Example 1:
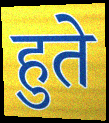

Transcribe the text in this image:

हुते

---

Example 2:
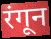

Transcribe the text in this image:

रंगून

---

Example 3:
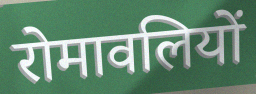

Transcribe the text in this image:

रोमावलियों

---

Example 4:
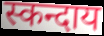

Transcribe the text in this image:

स्कन्दाय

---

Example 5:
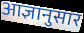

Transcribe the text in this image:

आज्ञानुसार